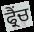
ਫ੍ਰੈਂਚ